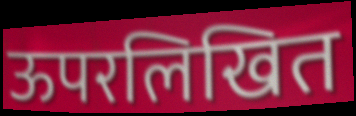
ऊपरलिखित